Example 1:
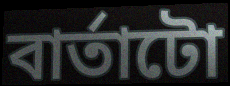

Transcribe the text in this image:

বাৰ্তাটো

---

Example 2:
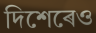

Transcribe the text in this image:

দিশেৰেও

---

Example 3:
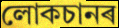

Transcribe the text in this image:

লোকচানৰ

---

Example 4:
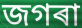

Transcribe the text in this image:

জগৰা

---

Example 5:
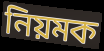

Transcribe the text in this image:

নিয়মক